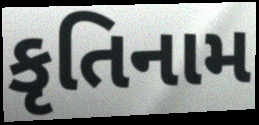
કૃતિનામ